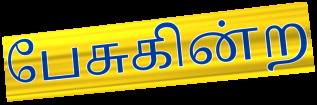
பேசுகின்ற